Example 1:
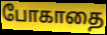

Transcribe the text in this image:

போகாதை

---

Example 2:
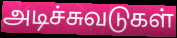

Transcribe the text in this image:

அடிச்சுவடுகள்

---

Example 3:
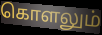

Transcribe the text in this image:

கொளலும்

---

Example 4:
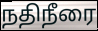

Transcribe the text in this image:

நதிநீரை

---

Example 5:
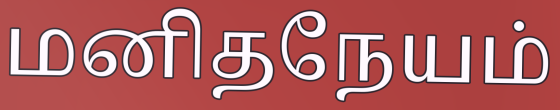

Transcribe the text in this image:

மனிதநேயம்